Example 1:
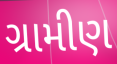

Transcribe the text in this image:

ગ્રામીણ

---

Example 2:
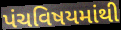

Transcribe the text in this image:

પંચવિષયમાંથી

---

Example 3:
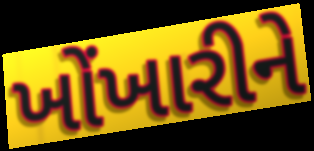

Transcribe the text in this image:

ખોંખારીને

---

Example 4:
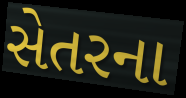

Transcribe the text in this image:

સેતરના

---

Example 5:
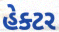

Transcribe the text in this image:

હેક્ટર